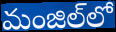
మంజిల్‌లో